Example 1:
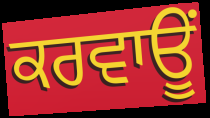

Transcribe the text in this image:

ਕਰਵਾਊਂ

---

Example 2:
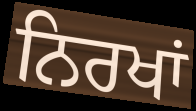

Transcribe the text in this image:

ਨਿਰਖਾਂ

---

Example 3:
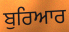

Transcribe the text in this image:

ਬੁਰਿਆਰ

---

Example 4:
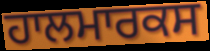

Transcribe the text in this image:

ਹਾਲਮਾਰਕਸ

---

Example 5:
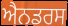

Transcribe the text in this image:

ਐਨਡਰਸ